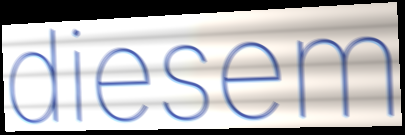
diesem